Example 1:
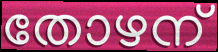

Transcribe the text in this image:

തോഴന്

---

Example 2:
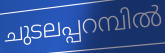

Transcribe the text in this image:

ചുടലപ്പറമ്പിൽ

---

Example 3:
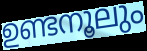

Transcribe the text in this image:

ഉണ്ടനൂലും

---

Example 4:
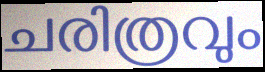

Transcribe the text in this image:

ചരിത്രവും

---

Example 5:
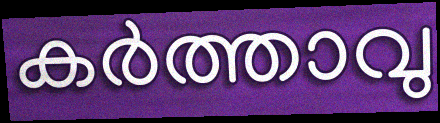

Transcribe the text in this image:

കർത്താവു